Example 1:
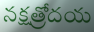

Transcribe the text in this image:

నక్షత్రోదయ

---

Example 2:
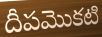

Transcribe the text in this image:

దీపమొకటి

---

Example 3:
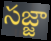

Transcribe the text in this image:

సజ్జా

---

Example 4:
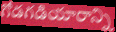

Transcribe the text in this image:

గోడగడియారాన్ని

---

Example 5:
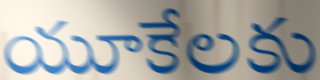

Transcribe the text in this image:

యూకేలకు